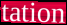
tation